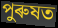
পুৰুষত